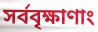
সর্ববৃক্ষাণাং